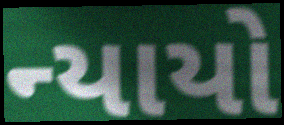
ન્યાયો